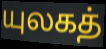
யுலகத்